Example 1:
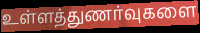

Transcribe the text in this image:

உள்ளத்துணர்வுகளை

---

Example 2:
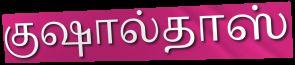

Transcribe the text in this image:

குஷால்தாஸ்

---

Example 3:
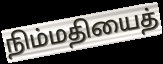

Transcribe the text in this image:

நிம்மதியைத்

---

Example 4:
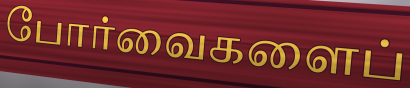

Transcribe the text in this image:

போர்வைகளைப்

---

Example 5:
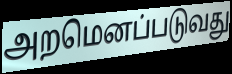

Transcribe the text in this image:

அறமெனப்படுவது